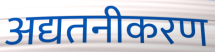
अद्यतनीकरण